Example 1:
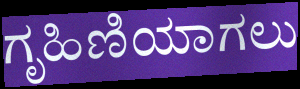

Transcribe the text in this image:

ಗೃಹಿಣಿಯಾಗಲು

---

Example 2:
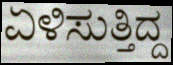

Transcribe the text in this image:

ಏಳಿಸುತ್ತಿದ್ದ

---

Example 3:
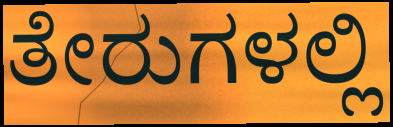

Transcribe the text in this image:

ತೇರುಗಳಲ್ಲಿ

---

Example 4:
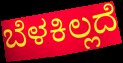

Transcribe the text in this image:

ಬೆಳಕಿಲ್ಲದೆ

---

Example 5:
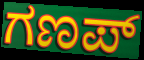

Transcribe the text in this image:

ಗಣಪ್